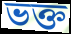
ভক্ত